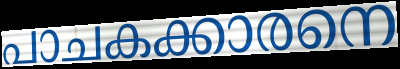
പാചകക്കാരനെ